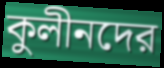
কুলীনদের